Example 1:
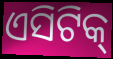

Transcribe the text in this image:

ଏସିଟିକ୍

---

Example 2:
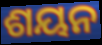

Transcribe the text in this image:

ଶୟନ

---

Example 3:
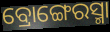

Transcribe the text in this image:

ବ୍ରୋଙ୍ଗେରସ୍ମା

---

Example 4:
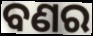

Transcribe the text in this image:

ବଣର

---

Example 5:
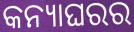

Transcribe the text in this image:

କନ୍ୟାଘରର